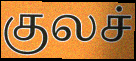
குலச்